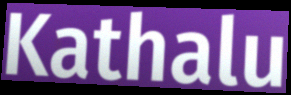
Kathalu